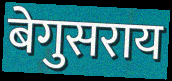
बेगुसराय